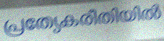
പ്രത്യേകരീതിയിൽ